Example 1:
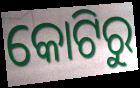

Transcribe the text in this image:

କୋଟିରୁ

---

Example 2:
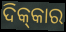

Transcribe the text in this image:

ଦିକ୍‌କାର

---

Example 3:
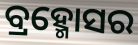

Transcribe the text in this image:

ବ୍ରହ୍ମୋସର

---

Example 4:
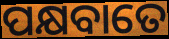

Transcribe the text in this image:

ପକ୍ଷବାତେ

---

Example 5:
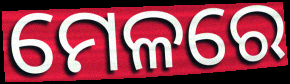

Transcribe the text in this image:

ମେଳରେ